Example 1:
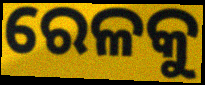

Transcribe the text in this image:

ରେଳକୁ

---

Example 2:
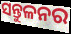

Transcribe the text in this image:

ସନ୍ତୁଳନର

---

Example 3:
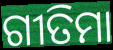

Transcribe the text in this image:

ଗୀତିମା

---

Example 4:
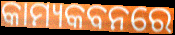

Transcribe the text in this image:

କାମ୍ୟକବନରେ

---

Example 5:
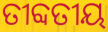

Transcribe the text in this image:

ତୀବ୍ଦତୀୟ